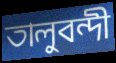
তালুবন্দী